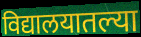
विद्यालयातल्या